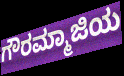
ಗೌರಮ್ಮಾಜಿಯ